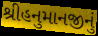
શ્રીહનુમાનજીનું